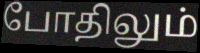
போதிலும்